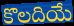
కొలదియే